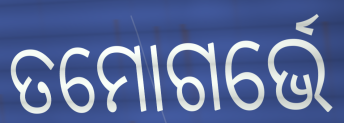
ତମୋଗର୍ଭେ